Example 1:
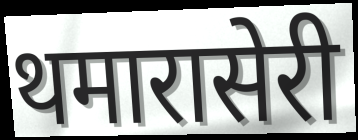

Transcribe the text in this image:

थमारासेरी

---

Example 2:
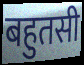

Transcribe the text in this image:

बहुतसी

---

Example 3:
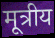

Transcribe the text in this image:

मूत्रीय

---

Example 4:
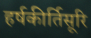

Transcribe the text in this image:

हर्षकीर्तिसूरि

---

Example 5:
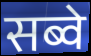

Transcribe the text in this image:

सब्वे